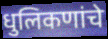
धुलिकणांचे